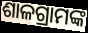
ଶାଳଗ୍ରାମଙ୍କ